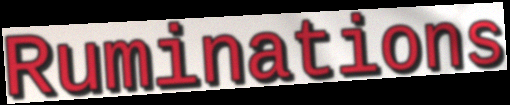
Ruminations